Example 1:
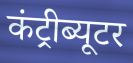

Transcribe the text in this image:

कंट्रीब्यूटर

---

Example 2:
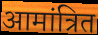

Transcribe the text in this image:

आमांत्रित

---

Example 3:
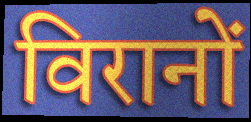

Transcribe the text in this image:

विरानों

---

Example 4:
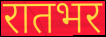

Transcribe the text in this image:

रातभर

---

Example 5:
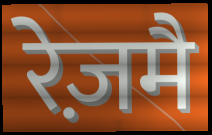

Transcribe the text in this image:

रेज़मै